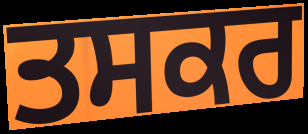
ਤਸਕਰ